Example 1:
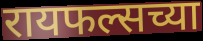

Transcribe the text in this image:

रायफल्सच्या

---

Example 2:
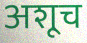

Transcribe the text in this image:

अश्रूच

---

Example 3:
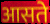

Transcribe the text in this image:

आसते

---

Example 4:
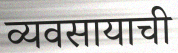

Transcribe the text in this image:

व्यवसायाची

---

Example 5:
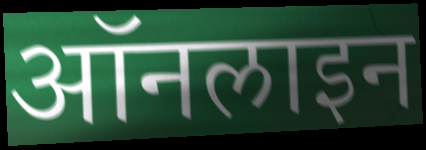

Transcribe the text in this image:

ऑनलाइन